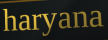
haryana